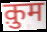
क़ुम